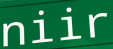
niir